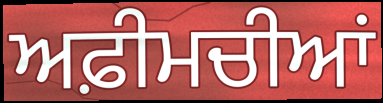
ਅਫ਼ੀਮਚੀਆਂ